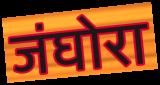
जंघोरा